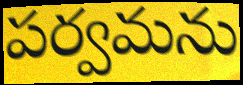
పర్వమను